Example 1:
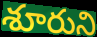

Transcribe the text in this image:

శూరుని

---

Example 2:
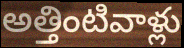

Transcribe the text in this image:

అత్తింటివాళ్లు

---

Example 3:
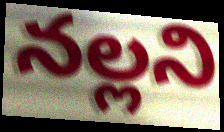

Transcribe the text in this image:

నల్లని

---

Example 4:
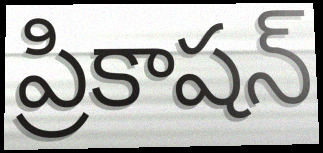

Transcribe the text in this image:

ప్రికాషన్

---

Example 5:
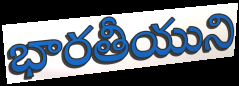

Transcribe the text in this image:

భారతీయుని